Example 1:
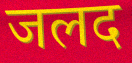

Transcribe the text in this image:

जलद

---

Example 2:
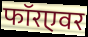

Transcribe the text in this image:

फॉरएवर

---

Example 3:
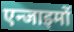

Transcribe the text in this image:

एन्जाइमों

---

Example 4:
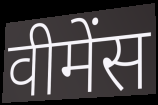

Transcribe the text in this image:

वीमेंस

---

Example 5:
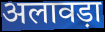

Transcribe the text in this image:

अलावड़ा